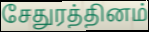
சேதுரத்தினம்